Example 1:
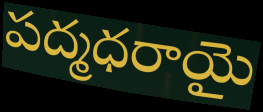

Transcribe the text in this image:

పద్మధరాయై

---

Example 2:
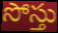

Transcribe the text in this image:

సోస్తు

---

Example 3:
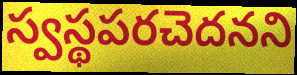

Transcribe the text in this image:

స్వస్థపరచెదనని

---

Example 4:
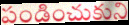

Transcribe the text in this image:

పండించుకుని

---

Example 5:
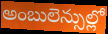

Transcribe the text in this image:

అంబులెన్సుల్లో